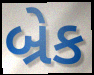
બ્રેક